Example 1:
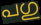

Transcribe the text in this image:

പഗു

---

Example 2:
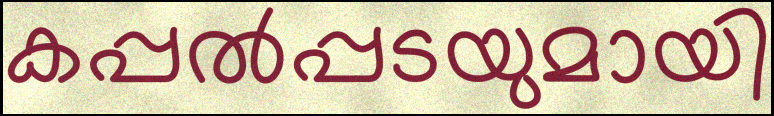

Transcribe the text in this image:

കപ്പൽപ്പടയുമായി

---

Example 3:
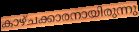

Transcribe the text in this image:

കാഴ്ചക്കാരനായിരുന്നു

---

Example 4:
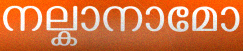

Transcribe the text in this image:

നല്കാനാമോ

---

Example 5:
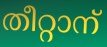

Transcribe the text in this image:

തീറ്റാന്